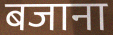
बजाना